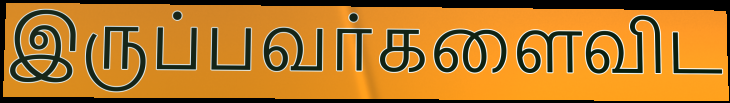
இருப்பவர்களைவிட